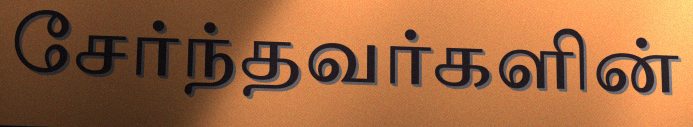
சேர்ந்தவர்களின்